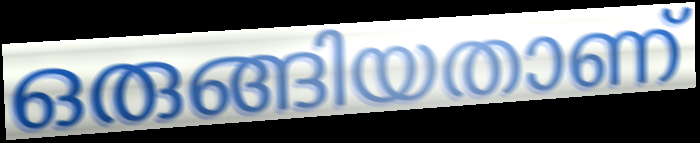
ഒരുങ്ങിയതാണ്